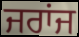
ਜਰਾਂਜ